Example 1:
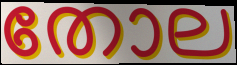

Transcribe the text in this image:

തോല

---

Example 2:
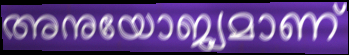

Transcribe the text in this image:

അനുയോജ്യമാണ്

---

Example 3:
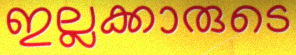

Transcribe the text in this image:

ഇല്ലക്കാരുടെ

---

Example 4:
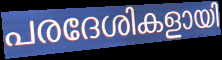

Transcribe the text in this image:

പരദേശികളായി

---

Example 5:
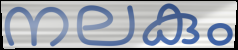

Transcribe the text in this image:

നലകും